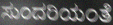
ಸುಂದರಿಯಂತೆ